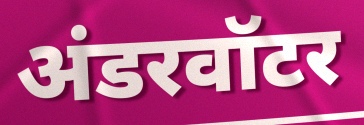
अंडरवॉटर